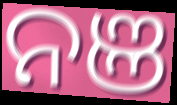
ନଞ